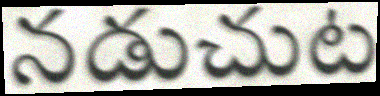
నడుచుట